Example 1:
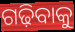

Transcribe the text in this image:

ଗଢ଼ିବାକୁ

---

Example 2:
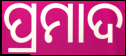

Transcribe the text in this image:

ପ୍ରମାଦ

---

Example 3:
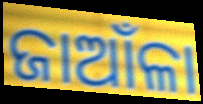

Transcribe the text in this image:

ଜାଆଁଳା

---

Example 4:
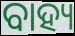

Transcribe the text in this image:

ବାହ୍ୟ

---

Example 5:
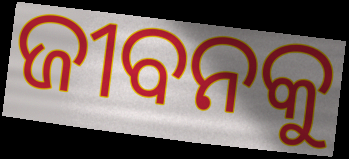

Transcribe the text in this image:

ଜୀବନକୁ